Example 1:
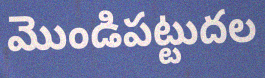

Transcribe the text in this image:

మొండిపట్టుదల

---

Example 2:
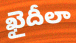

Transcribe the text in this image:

ఖైదీలా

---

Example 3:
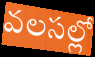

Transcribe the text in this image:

వలసల్లో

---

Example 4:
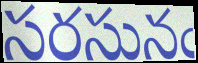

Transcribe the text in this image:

సరసునఁ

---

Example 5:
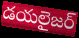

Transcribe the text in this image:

డయలైజర్